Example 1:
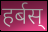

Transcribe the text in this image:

हर्बस्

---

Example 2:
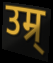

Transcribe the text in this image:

उम्र्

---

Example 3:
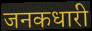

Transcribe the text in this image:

जनकधारी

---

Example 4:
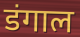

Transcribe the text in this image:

डंगाल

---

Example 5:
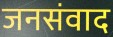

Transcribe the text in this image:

जनसंवाद